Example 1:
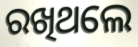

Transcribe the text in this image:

ରଖିଥଲେ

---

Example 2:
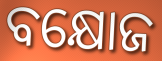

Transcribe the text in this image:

ବକ୍ଷୋଜ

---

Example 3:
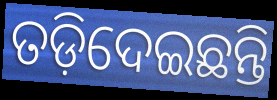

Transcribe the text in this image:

ତଡ଼ିଦେଇଛନ୍ତି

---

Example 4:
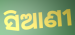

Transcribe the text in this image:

ସିଆଣୀ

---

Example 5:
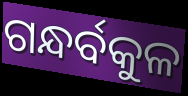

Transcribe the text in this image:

ଗନ୍ଧର୍ବକୁଳ